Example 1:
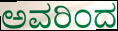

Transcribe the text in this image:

ಅವರಿಂದ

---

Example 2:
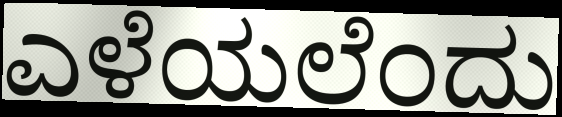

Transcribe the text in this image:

ಎಳೆಯಲೆಂದು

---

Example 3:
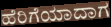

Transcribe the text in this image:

ಹೆರಿಗೆಯಾದಾಗ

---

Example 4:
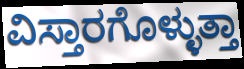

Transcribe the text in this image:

ವಿಸ್ತಾರಗೊಳ್ಳುತ್ತಾ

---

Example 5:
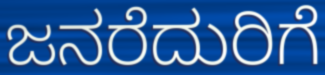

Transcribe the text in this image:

ಜನರೆದುರಿಗೆ